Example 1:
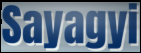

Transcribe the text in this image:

Sayagyi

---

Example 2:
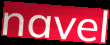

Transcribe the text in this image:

navel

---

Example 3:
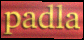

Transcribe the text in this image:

padla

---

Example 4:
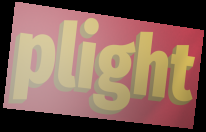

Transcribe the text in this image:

plight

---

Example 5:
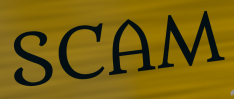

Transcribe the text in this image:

SCAM